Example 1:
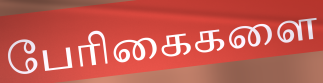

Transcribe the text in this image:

பேரிகைகளை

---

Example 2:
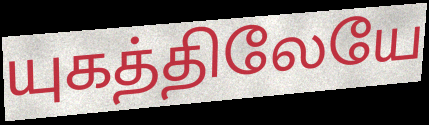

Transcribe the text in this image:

யுகத்திலேயே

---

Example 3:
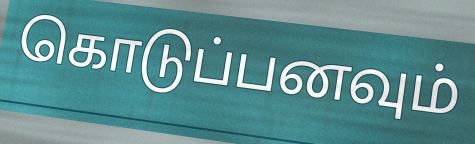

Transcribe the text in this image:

கொடுப்பனவும்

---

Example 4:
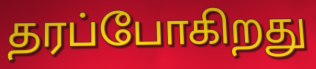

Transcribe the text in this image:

தரப்போகிறது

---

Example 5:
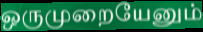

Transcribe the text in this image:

ஒருமுறையேனும்